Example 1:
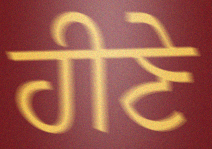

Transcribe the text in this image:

ਹੀਣੇ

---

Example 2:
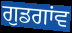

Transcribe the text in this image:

ਗੁਡਗਾਂਵ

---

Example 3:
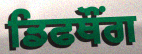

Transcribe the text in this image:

ਡਿਫਥੌਂਗ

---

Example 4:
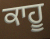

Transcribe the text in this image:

ਕਾਹੂ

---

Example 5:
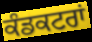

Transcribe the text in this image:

ਕੰਡਕਟਰਾਂ